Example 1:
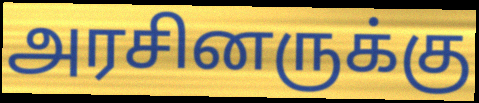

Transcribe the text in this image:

அரசினருக்கு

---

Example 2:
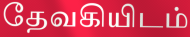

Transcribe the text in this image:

தேவகியிடம்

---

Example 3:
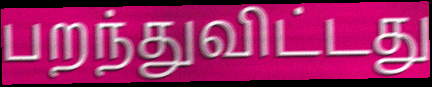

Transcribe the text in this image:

பறந்துவிட்டது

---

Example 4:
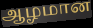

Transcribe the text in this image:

ஆழமான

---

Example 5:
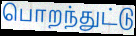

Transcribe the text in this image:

பொறந்துட்டு